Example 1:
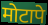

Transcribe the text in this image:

मोटापे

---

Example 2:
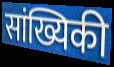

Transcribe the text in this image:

सांख्यिकी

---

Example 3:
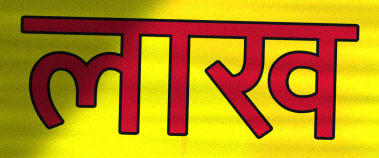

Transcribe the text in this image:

लाख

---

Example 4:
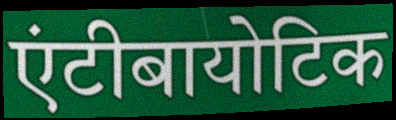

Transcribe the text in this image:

एंटीबायोटिक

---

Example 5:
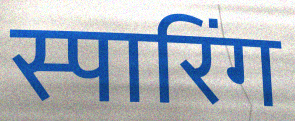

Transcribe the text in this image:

स्पारिंग